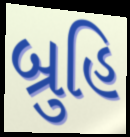
બ્રુહિ